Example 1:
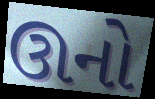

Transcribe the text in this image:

ઊનો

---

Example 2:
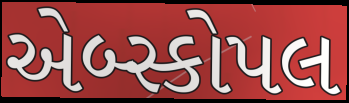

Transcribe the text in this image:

એબ્સ્કોપલ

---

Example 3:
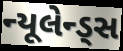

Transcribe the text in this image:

ન્યૂલેન્ડ્સ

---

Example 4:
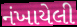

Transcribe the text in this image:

નંખાયેલી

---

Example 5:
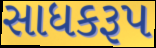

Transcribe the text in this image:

સાધકરૂપ